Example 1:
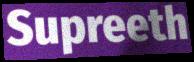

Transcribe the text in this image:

Supreeth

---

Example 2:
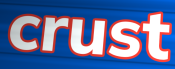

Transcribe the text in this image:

crust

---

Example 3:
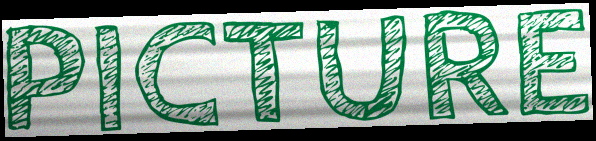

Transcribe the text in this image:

PICTURE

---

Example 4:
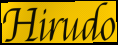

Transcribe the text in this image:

Hirudo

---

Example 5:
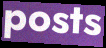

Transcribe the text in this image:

posts